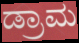
ಡ್ರಾಮ